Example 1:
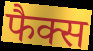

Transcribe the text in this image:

फैक्स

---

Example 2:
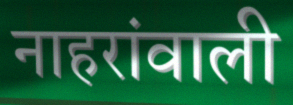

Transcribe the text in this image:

नाहरांवाली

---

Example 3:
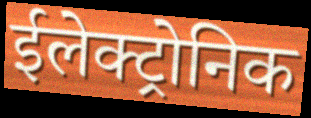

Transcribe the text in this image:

ईलेक्ट्रोनिक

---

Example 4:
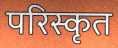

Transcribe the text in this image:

परिस्कृत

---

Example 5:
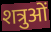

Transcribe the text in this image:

शत्रुओं